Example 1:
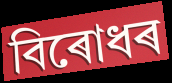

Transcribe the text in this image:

বিৰোধৰ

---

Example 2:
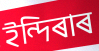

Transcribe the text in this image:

ইন্দিৰাৰ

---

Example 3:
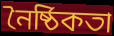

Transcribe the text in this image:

নৈষ্ঠিকতা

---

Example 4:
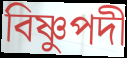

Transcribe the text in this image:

বিষ্ণুপদী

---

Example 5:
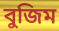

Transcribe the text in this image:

বুজিম